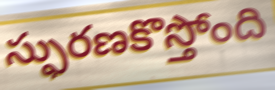
స్ఫురణకొస్తోంది